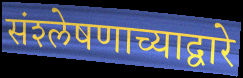
संश्लेषणाच्याद्वारे